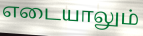
எடையாலும்